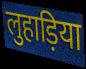
लुहाड़िया